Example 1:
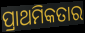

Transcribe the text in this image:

ପ୍ରାଥମିକତାର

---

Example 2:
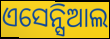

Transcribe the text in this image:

ଏସେନ୍ସିଆଲ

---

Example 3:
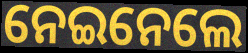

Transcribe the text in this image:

ନେଇନେଲେ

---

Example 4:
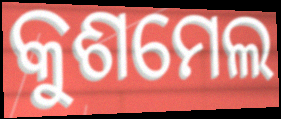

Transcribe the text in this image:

କୁଶମେଲ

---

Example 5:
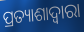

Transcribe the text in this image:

ପ୍ରତ୍ୟାଶାଦ୍ୱାରା